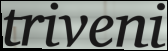
triveni